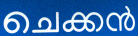
ചെക്കൻ